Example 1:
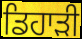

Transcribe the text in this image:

ਡਿਹਾੜੀ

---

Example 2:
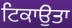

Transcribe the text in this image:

ਟਿਕਾਉਤਾ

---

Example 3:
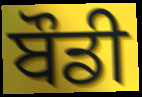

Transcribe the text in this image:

ਬੌਡੀ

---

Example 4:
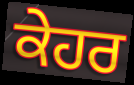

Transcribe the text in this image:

ਕੇਹਰ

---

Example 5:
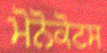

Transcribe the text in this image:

ਮੋਨੋਕੋਟਸ